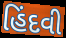
હિંદવી